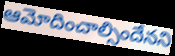
ఆమోదించాల్సిందేనని